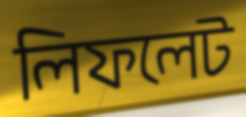
লিফলেট